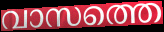
വാസത്തെ